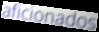
aficionados